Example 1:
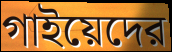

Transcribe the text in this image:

গাইয়েদের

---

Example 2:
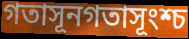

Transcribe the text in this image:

গতাসূনগতাসূংশ্চ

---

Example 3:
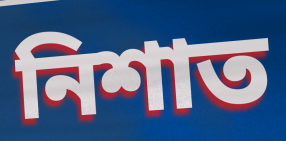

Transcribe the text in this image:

নিশাত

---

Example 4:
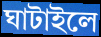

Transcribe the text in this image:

ঘাটাইলে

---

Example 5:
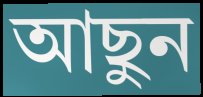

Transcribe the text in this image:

আছুন